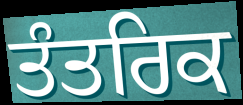
ਤੰਤਰਿਕ